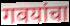
गवयांचा